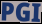
PGI